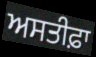
ਅਸਤੀਫ਼ਾ